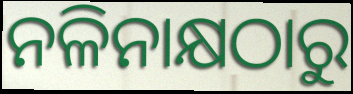
ନଳିନାକ୍ଷଠାରୁ